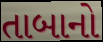
તાબાનો